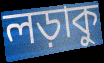
লড়াকু